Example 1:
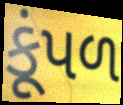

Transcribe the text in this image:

કૂંપળ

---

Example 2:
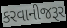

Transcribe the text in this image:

કરવાનીજરૂર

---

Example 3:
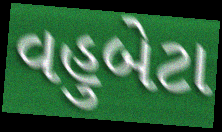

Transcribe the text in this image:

વહુબેટા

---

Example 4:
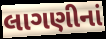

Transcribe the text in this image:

લાગણીનાં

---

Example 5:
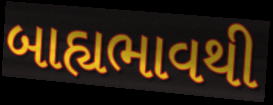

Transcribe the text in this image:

બાહ્યભાવથી